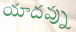
యాదవ్ను